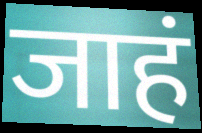
जाहं